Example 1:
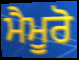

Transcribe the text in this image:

ਮੈਮੂਰੋ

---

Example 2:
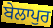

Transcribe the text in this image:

ਬੇਲਾਪੁਰ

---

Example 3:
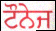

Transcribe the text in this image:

ਟੌਨੇਜ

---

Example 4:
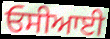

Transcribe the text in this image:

ਓਸੀਆਈ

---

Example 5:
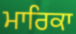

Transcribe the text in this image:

ਮਾਰਿਕਾ